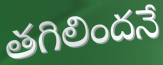
తగిలిందనే